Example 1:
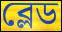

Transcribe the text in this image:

ব্লেড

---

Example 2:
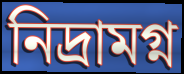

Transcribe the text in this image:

নিদ্ৰামগ্ন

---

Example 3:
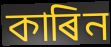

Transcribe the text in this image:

কাৰিন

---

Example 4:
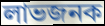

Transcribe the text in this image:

লাভজনক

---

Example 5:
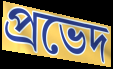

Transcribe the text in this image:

প্ৰভেদ